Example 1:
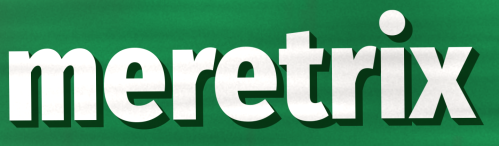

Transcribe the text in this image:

meretrix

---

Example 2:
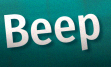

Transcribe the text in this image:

Beep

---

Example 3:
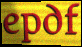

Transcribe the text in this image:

epdf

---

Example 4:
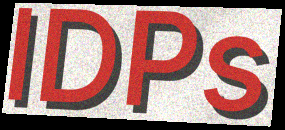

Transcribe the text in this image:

IDPs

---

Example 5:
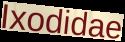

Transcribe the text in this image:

Ixodidae